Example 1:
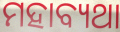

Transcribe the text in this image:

ମହାବ୍ୟଥା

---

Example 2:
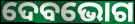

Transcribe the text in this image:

ଦେବଭୋଗ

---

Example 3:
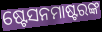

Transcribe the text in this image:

ଷ୍ଟେସନମାଷ୍ଟରଙ୍କ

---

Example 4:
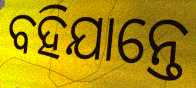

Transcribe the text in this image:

ବହିଯାନ୍ତେ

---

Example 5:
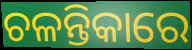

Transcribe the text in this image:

ଚଳନ୍ତିକାରେ